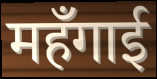
महँगाई